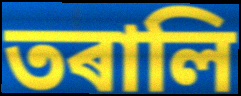
তৰালি